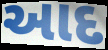
આદ